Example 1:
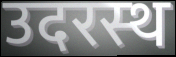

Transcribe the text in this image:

उदरस्थ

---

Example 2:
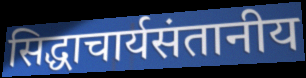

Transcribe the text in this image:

सिद्धाचार्यसंतानीय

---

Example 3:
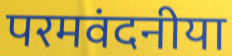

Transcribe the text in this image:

परमवंदनीया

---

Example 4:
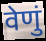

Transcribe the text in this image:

वेणुं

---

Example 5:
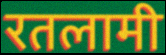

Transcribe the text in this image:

रतलामी